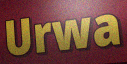
Urwa